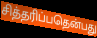
சித்தரிப்பதென்பது